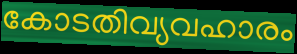
കോടതിവ്യവഹാരം